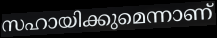
സഹായിക്കുമെന്നാണ്